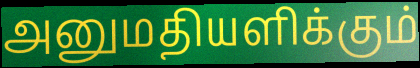
அனுமதியளிக்கும்